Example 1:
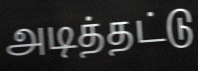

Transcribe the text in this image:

அடித்தட்டு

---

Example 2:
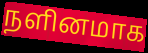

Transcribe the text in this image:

நளினமாக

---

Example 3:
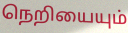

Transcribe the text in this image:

நெறியையும்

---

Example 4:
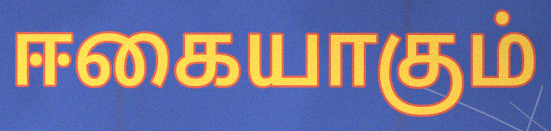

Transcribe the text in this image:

ஈகையாகும்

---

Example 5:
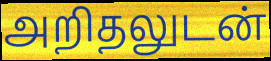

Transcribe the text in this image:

அறிதலுடன்